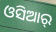
ଓସିଆର୍